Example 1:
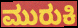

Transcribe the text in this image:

ಮುರುಕಿ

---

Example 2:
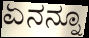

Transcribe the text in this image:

ಏನನ್ನೂ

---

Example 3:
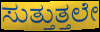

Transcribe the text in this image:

ಸುತ್ತುತ್ತಲೇ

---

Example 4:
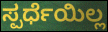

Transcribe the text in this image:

ಸ್ಪರ್ಧೆಯಿಲ್ಲ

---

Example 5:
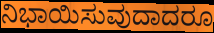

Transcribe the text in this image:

ನಿಭಾಯಿಸುವುದಾದರೂ